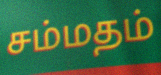
சம்மதம்